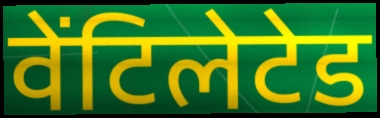
वेंटिलेटेड